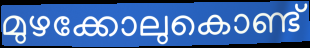
മുഴക്കോലുകൊണ്ട്